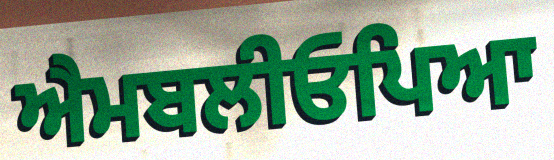
ਐਮਬਲੀਓਪਿਆ